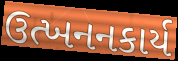
ઉત્ખનનકાર્ય